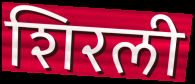
शिरली